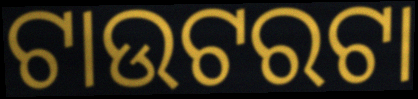
ଟାଉଟରଟା